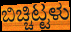
ಬಿಚ್ಚಿಟ್ಟಳು